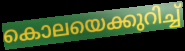
കൊലയെക്കുറിച്ച്